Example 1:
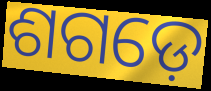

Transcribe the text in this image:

ଶଗଡ଼େ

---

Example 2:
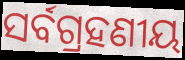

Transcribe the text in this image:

ସର୍ବଗ୍ରହଣୀୟ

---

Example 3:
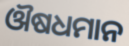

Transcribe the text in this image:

ଔଷଧମାନ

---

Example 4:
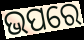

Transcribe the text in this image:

ଭପରେ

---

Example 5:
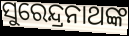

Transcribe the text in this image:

ସୁରେନ୍ଦ୍ରନାଥଙ୍କ